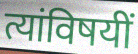
त्यांविषयीं